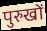
पुरुखों